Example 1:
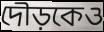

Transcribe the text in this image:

দৌড়কেও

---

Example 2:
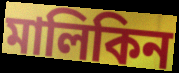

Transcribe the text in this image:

মালিকিন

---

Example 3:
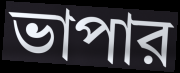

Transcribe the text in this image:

ভাপার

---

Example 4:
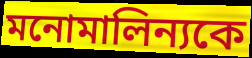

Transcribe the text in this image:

মনোমালিন্যকে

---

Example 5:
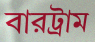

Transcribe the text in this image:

বারট্রাম